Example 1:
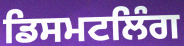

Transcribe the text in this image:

ਡਿਸਮਟਲਿੰਗ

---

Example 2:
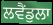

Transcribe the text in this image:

ਲਵੈਂਡੁਲਾ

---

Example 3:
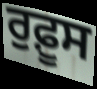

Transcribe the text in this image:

ਰੁਫ਼ੂਸ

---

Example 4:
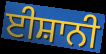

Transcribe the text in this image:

ਈਸ਼ਾਨੀ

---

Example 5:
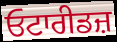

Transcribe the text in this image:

ਓਟਾਰੀਡਜ਼